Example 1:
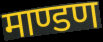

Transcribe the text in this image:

माण्डण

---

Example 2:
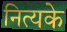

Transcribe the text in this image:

नित्यके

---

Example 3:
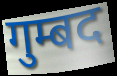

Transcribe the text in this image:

गुम्बद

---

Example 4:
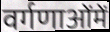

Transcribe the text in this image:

वर्गणाओंमें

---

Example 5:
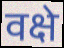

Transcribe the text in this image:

वक्षे